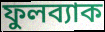
ফুলব্যাক